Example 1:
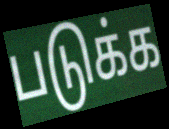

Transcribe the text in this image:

படுக்க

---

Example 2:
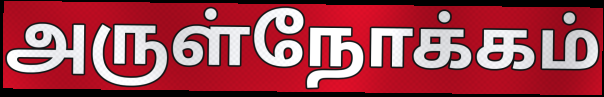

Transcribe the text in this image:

அருள்நோக்கம்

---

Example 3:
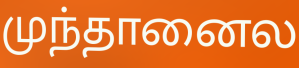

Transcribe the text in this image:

முந்தானைல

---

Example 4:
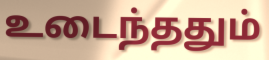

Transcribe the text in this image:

உடைந்ததும்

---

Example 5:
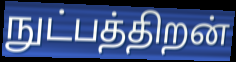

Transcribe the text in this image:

நுட்பத்திறன்